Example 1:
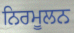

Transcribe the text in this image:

ਨਿਰਮੂਲਨ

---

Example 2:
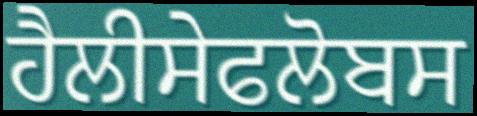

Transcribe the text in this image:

ਹੈਲੀਸੇਫਲੋਬਸ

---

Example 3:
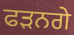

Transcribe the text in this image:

ਫੜਨਗੇ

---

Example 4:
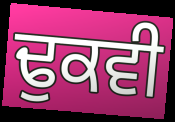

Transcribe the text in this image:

ਢੁਕਵੀ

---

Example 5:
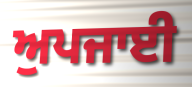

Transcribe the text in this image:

ਅੁਪਜਾਈ